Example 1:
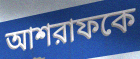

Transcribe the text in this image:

আশরাফকে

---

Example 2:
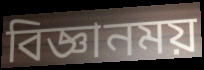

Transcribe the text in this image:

বিজ্ঞানময়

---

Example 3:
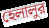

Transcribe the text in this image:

হেলালুর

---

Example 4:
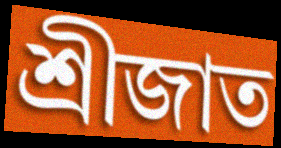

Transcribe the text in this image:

শ্রীজাত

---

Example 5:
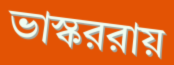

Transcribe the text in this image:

ভাস্কররায়